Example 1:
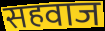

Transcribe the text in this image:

सहवाज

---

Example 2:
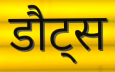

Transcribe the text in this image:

डौट्स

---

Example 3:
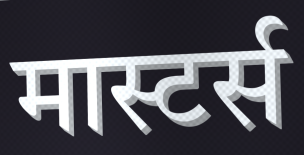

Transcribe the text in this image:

मास्टर्स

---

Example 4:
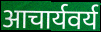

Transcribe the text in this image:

आचार्यवर्य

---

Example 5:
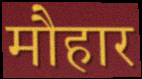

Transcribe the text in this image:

मौहार